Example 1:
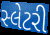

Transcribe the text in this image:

સ્લેટરી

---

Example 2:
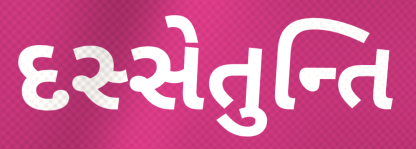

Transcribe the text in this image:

દસ્સેતુન્તિ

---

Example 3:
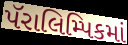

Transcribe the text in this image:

પૅરાલિમ્પિકમાં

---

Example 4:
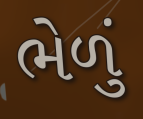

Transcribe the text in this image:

ભેળું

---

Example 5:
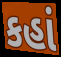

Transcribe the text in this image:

કહાં